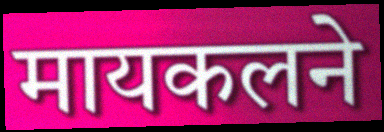
मायकलने